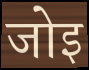
जोइ